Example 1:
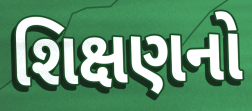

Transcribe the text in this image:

શિક્ષણનો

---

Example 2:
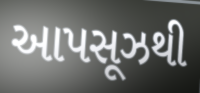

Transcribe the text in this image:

આપસૂઝથી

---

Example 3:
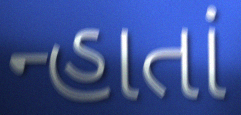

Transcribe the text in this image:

ન્હાતાં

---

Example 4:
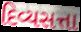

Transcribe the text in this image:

દિવ્યસત્તા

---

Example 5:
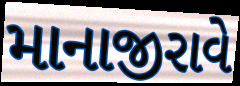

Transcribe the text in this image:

માનાજીરાવે